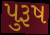
પુરૂષ